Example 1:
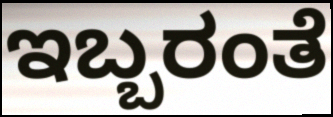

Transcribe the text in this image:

ಇಬ್ಬರಂತೆ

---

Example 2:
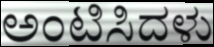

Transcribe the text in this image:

ಅಂಟಿಸಿದಳು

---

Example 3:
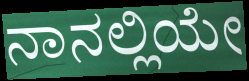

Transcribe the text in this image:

ನಾನಲ್ಲಿಯೇ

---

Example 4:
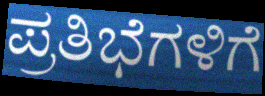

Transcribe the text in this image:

ಪ್ರತಿಭೆಗಳಿಗೆ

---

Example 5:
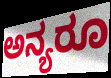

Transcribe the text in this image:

ಅನ್ಯರೂ